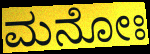
ಮನೋಃ